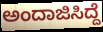
ಅಂದಾಜಿಸಿದ್ದೆ